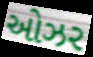
ઓઝર